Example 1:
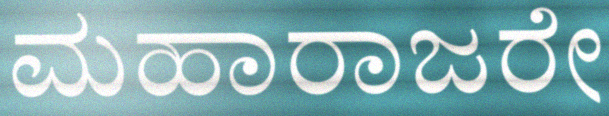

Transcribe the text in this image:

ಮಹಾರಾಜರೇ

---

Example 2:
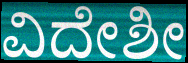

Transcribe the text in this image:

ವಿದೇಶೀ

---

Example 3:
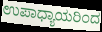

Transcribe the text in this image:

ಉಪಾಧ್ಯಾಯರಿಂದ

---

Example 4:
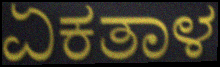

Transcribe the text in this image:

ಏಕತಾಳ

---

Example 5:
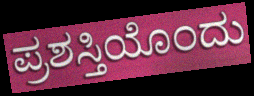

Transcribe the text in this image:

ಪ್ರಶಸ್ತಿಯೊಂದು